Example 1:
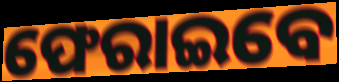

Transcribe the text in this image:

ଫେରାଇବେ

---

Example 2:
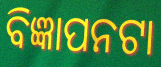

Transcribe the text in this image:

ବିଜ୍ଞାପନଟା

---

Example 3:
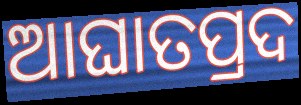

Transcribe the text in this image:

ଆଘାତପ୍ରଦ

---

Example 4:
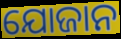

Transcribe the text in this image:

ଯୋଜାନ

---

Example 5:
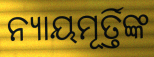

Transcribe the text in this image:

ନ୍ୟାୟମୂର୍ତ୍ତିଙ୍କ